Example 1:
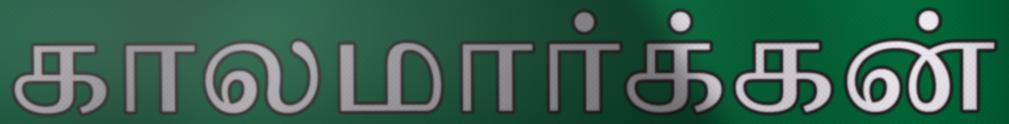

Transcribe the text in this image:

காலமார்க்கன்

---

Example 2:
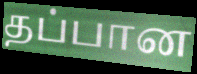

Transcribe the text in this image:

தப்பான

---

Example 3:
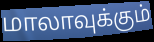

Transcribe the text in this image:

மாலாவுக்கும்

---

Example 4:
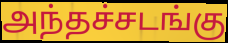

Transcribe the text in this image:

அந்தச்சடங்கு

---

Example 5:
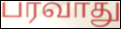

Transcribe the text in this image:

பரவாது